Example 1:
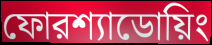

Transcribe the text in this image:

ফোরশ্যাডোয়িং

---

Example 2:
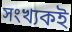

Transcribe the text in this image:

সংখ্যকই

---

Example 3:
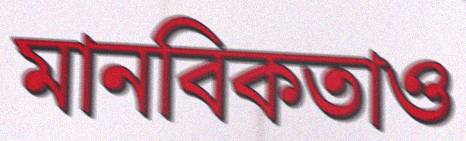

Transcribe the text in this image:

মানবিকতাও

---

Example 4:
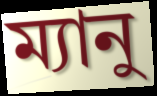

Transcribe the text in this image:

ম্যানু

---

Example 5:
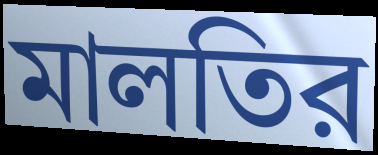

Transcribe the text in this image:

মালতির